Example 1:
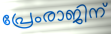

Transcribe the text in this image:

പ്രേംരാജിന്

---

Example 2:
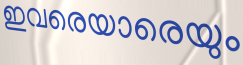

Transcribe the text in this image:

ഇവരെയാരെയും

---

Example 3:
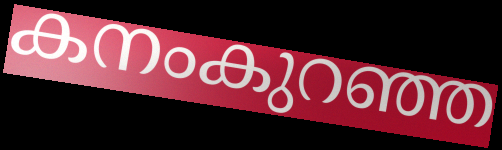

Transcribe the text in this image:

കനംകുറഞ്ഞ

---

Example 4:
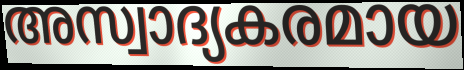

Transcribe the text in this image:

അസ്വാദ്യകരമായ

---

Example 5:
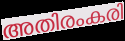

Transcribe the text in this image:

അതിരംകരി